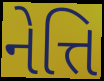
નેત્તિ